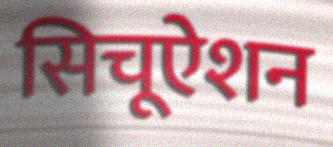
सिचूऐशन